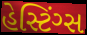
હેસ્ટિંગ્સ